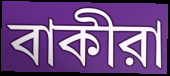
বাকীরা